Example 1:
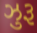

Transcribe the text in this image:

ઝુરૂ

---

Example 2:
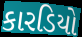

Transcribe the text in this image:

કારડિયો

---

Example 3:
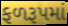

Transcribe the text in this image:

ફળરૂપમાં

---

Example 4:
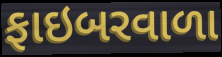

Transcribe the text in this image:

ફાઇબરવાળા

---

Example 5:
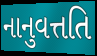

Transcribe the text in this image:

નાનુવત્તતિ